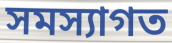
সমস্যাগত